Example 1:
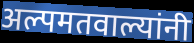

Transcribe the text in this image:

अल्पमतवाल्यांनी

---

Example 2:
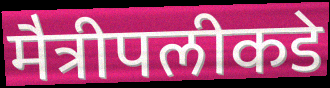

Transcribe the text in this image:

मैत्रीपलीकडे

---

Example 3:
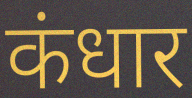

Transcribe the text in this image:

कंधार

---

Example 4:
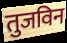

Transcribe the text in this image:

तुजविन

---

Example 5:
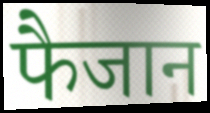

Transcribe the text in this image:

फैजान